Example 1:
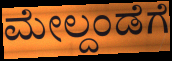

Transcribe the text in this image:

ಮೇಲ್ದಂಡೆಗೆ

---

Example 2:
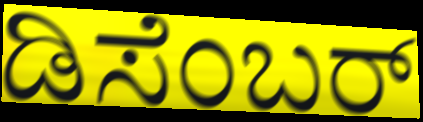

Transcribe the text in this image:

ಡಿಸೆಂಬರ್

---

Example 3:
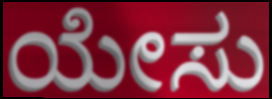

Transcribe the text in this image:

ಯೇಸು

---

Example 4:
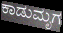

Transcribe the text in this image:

ಕಾಡುಮೃಗ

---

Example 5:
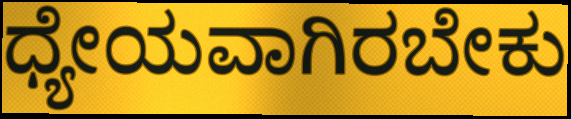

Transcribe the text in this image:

ಧ್ಯೇಯವಾಗಿರಬೇಕು